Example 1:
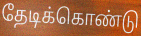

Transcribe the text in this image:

தேடிக்கொண்டு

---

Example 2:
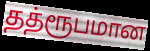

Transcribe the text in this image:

தத்ரூபமான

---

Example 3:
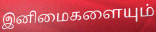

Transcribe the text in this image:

இனிமைகளையும்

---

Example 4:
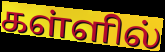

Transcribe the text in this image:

கள்ளில்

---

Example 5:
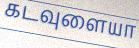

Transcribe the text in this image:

கடவுளையா